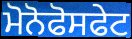
ਮੋਨੋਫੋਸਫੇਟ